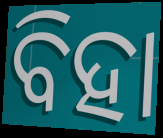
ବିହା